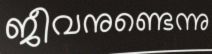
ജീവനുണ്ടെന്നു